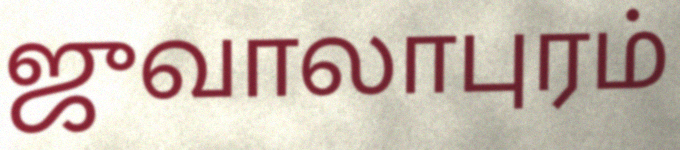
ஜுவாலாபுரம்